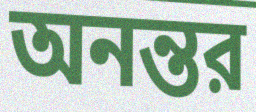
অনন্তর